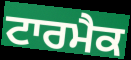
ਟਾਰਮੈਕ